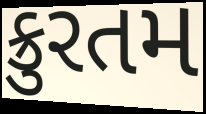
ક્રુરતમ